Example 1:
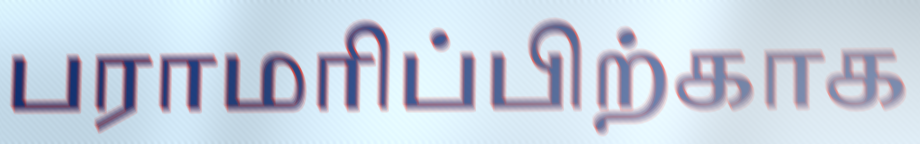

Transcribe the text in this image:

பராமரிப்பிற்காக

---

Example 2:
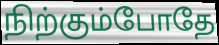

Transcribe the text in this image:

நிற்கும்போதே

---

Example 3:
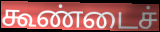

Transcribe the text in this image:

கூண்டைச்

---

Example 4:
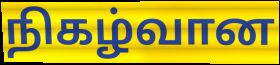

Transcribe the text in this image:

நிகழ்வான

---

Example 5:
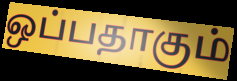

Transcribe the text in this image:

ஒப்பதாகும்